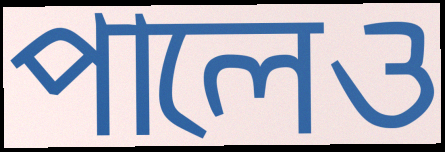
পালেও